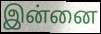
இன்னை